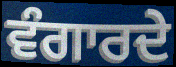
ਵੰਗਾਰਦੇ